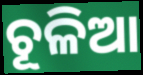
ଚୂଳିଆ